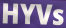
HYVs